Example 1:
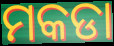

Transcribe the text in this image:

ମକଡା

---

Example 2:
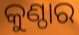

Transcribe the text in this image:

କୁଣ୍ଠାର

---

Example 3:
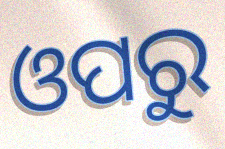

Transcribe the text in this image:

ଓପରୁ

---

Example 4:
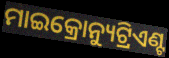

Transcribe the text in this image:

ମାଇକ୍ରୋନ୍ୟୁଟ୍ରିଏଣ୍ଟ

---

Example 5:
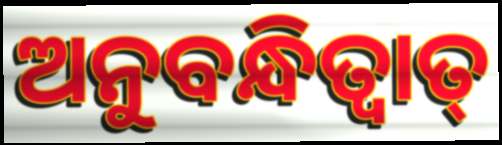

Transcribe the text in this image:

ଅନୁବନ୍ଧିତ୍ଵାତ୍